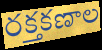
రక్తకణాల